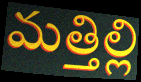
మత్తిల్లి